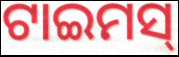
ଟାଇମସ୍